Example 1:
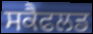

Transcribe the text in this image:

ਸਕੈਫਲਡ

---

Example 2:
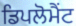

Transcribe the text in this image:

ਡਿਪਲੋਮੈਂਟ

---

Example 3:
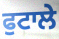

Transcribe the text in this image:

ਫੁਟਾਲੇ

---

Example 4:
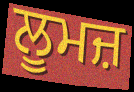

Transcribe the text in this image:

ਲੂਮਜ਼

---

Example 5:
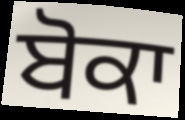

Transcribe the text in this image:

ਬੋਕਾ